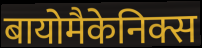
बायोमैकेनिक्स